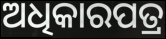
ଅଧିକାରପତ୍ର